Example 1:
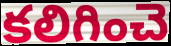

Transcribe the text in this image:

కలిగించె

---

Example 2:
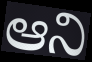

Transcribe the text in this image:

ఆని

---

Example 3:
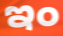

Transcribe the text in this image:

ఇం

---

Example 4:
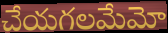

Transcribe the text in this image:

చేయగలమేమో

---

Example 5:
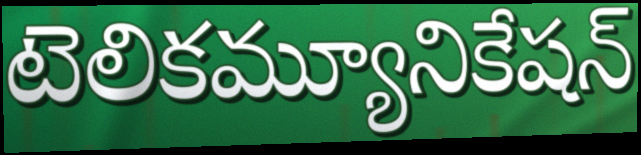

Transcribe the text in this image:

టెలికమ్యూనికేషన్